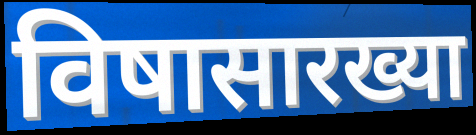
विषासारख्या